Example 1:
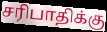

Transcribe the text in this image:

சரிபாதிக்கு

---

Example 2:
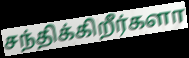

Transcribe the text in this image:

சந்திக்கிறீர்களா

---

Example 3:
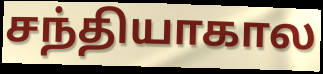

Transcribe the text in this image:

சந்தியாகால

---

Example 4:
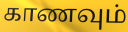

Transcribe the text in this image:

காணவும்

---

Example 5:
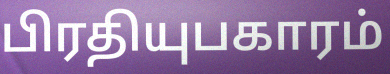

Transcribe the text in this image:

பிரதியுபகாரம்